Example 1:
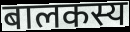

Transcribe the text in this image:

बालकस्य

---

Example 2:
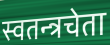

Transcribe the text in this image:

स्वतन्त्रचेता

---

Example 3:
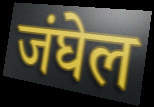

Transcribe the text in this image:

जंघेल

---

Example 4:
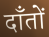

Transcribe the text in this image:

दाँतों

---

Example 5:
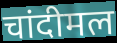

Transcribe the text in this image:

चांदीमल